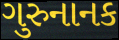
ગુરુનાનક